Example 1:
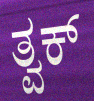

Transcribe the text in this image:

ತ್ವಕ್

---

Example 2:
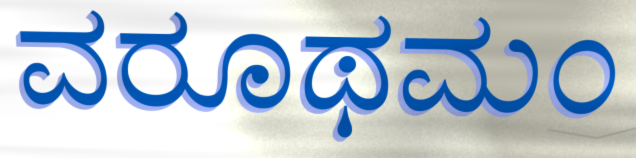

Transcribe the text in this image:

ವರೂಥಮಂ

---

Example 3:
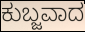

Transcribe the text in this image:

ಕುಬ್ಜವಾದ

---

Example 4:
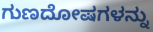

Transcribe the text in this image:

ಗುಣದೋಷಗಳನ್ನು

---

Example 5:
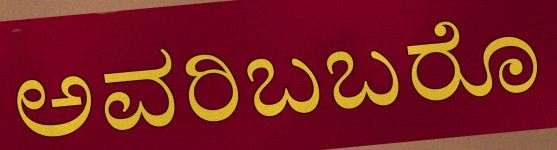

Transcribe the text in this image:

ಅವರಿಬಬರೊ